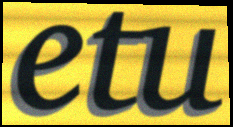
etu